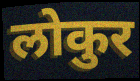
लोकुर